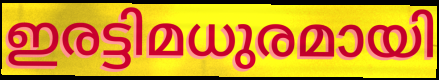
ഇരട്ടിമധുരമായി